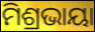
ମିଶ୍ରଭାୟା